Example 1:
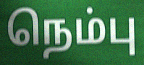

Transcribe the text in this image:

நெம்பு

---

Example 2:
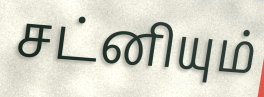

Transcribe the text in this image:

சட்னியும்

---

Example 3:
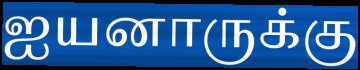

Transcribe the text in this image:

ஐயனாருக்கு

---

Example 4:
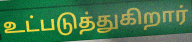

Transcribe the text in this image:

உட்படுத்துகிறார்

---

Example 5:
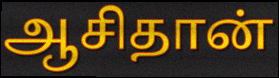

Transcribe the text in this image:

ஆசிதான்